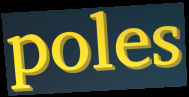
poles